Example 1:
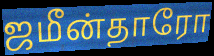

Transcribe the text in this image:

ஜமீன்தாரோ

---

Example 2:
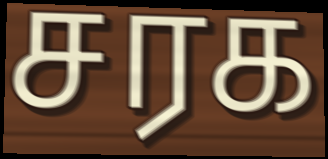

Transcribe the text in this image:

சரக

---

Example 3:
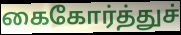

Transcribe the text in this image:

கைகோர்த்துச்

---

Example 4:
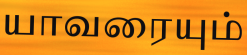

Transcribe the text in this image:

யாவரையும்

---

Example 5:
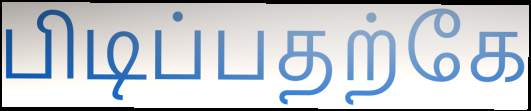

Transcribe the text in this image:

பிடிப்பதற்கே